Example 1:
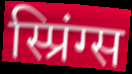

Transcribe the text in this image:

स्प्रिंग्स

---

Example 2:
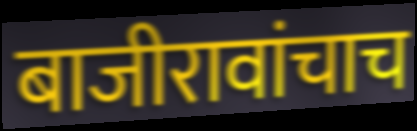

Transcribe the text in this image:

बाजीरावांचाच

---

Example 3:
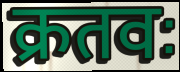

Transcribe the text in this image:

क्रतवः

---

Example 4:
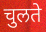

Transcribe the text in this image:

चुलते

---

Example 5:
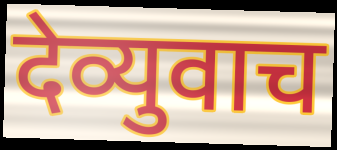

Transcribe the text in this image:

देव्युवाच